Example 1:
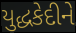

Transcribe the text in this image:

યુદ્ધકેદીને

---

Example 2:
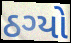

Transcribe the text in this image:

ઠગ્યો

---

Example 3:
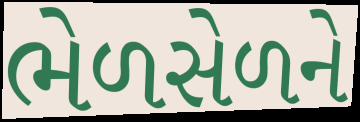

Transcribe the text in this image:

ભેળસેળને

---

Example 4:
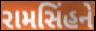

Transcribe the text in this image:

રામસિંહને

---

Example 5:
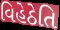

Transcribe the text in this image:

વિહેઠેતિ